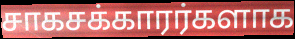
சாகசக்காரர்களாக